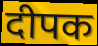
दीपक